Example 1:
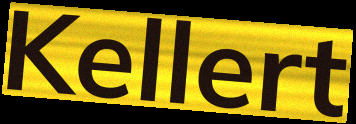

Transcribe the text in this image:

Kellert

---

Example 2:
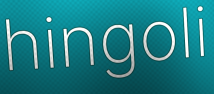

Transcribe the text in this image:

hingoli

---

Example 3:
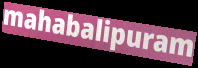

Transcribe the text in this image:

mahabalipuram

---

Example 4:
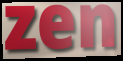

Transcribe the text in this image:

zen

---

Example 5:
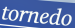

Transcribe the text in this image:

tornedo